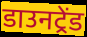
डाउनट्रेंड